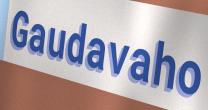
Gaudavaho